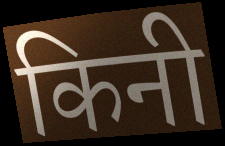
किनी